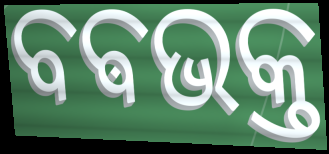
ବଵଭକ୍ତ